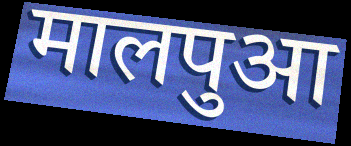
मालपुआ